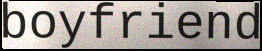
boyfriend